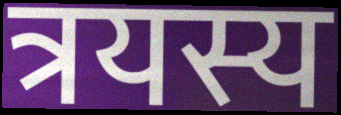
त्रयस्य